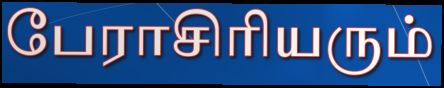
பேராசிரியரும்